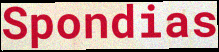
Spondias